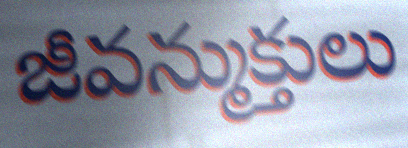
జీవన్ముక్తులు